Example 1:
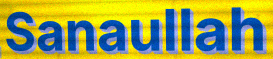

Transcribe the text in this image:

Sanaullah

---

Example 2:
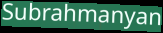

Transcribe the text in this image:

Subrahmanyan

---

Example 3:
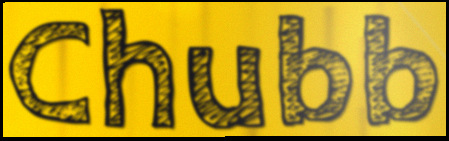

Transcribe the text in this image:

Chubb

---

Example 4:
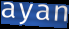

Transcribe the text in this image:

ayan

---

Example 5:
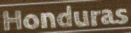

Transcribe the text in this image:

Honduras